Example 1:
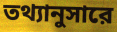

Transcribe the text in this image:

তথ্যানুসারে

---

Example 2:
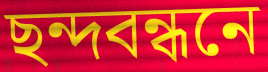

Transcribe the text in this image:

ছন্দবন্ধনে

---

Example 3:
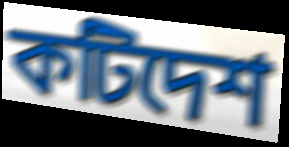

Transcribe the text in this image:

কটিদেশ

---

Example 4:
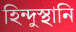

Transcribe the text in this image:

হিন্দুস্থানি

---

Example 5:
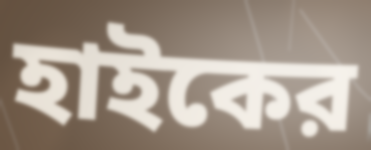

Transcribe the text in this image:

হাইকের